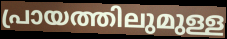
പ്രായത്തിലുമുള്ള